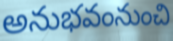
అనుభవంనుంచి